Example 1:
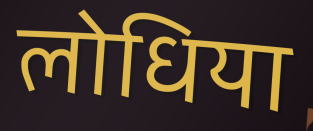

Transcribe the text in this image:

लोधिया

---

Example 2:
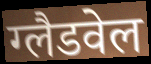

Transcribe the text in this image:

ग्लैडवेल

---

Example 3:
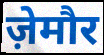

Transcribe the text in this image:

ज़ेमौर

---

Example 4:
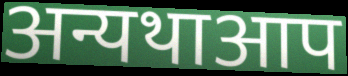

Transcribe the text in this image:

अन्यथाआप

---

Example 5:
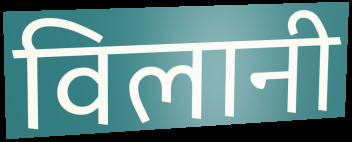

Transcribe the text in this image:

विलानी